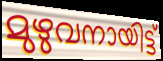
മുഴുവനായിട്ട്